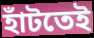
হাঁটতেই